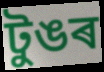
টুঙৰ